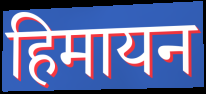
हिमायन